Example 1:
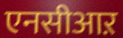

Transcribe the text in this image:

एनसीआऱ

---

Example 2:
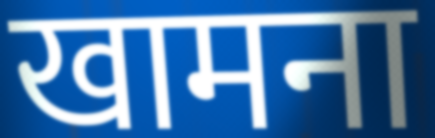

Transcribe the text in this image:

खामना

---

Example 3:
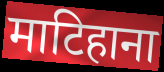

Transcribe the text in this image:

माटिहाना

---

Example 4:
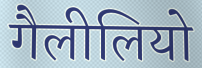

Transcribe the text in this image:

गैलीलियो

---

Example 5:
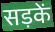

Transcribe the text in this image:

सड़कें